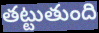
తట్టుతుంది